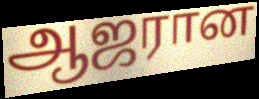
ஆஜரான